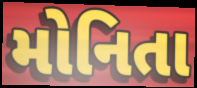
મોનિતા